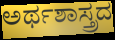
ಅರ್ಥಶಾಸ್ತ್ರದ